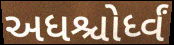
અધશ્ચોર્ધ્વં